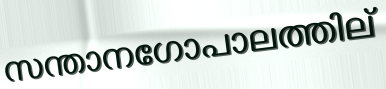
സന്താനഗോപാലത്തില്